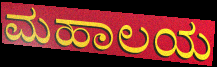
ಮಹಾಲಯ